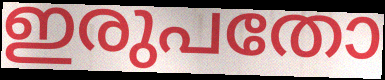
ഇരുപതോ